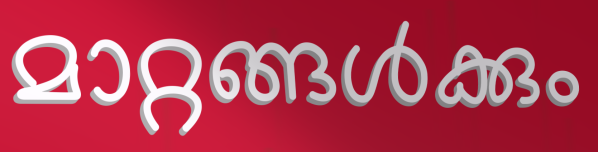
മാറ്റങ്ങൾക്കും